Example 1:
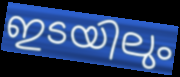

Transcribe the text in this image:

ഇടയിലും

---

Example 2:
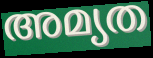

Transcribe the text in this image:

അമ്യത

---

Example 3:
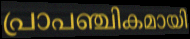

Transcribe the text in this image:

പ്രാപഞ്ചികമായി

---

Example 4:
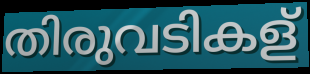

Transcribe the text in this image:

തിരുവടികള്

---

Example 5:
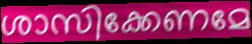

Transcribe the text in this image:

ശാസിക്കേണമേ